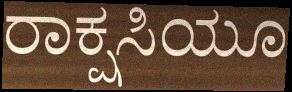
ರಾಕ್ಷಸಿಯೂ